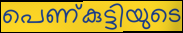
പെണ്കുട്ടിയുടെ